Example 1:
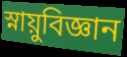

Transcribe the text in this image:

স্নায়ুবিজ্ঞান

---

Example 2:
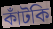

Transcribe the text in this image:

কাঁটকি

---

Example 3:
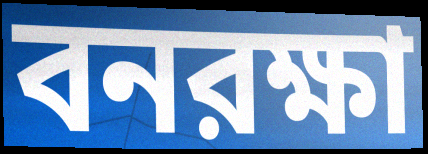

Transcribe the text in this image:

বনরক্ষা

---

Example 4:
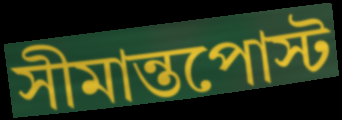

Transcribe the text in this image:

সীমান্তপোস্ট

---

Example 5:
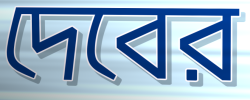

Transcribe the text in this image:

দেবের